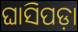
ଘାସିପଡ଼ା